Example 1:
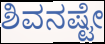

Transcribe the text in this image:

ಶಿವನಷ್ಟೇ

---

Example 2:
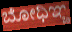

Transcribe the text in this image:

ಬೋಧಿಞ್ಚ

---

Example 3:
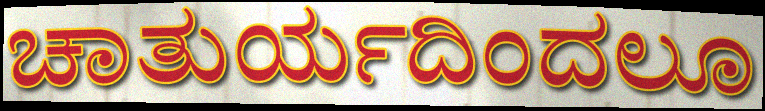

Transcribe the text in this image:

ಚಾತುರ್ಯದಿಂದಲೂ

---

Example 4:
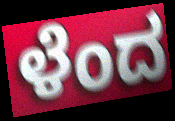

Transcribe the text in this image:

ಳೆಂದ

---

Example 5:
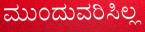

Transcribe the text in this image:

ಮುಂದುವರಿಸಿಲ್ಲ